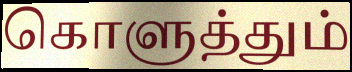
கொளுத்தும்